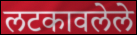
लटकावलेले